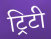
ट्रिटी